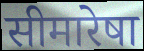
सीमारेषा